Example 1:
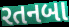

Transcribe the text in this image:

રતનબા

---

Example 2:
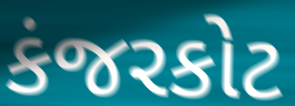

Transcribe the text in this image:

કંજરકોટ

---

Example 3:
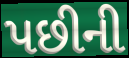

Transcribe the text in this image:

પછીની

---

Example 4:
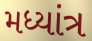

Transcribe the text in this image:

મધ્યાંત્ર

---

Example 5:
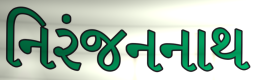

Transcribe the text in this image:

નિરંજનનાથ